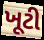
ખૂટી